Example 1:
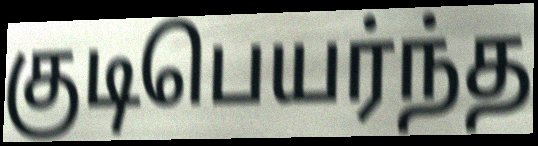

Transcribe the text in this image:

குடிபெயர்ந்த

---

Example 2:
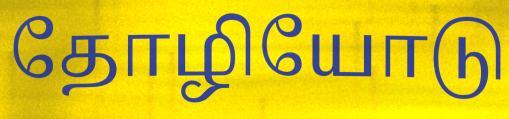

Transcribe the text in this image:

தோழியோடு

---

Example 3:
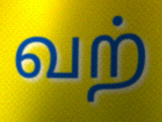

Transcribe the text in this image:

வற்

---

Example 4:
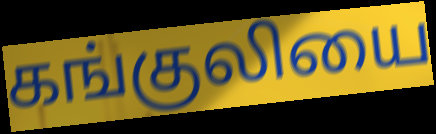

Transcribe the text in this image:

கங்குலியை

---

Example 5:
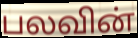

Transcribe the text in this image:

பலவின்